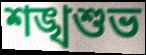
শঙ্খশুভ